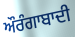
ਔਰੰਗਾਬਾਦੀ